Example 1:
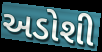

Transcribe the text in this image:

અડોશી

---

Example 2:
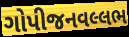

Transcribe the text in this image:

ગોપીજનવલ્લભ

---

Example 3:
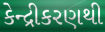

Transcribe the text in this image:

કેન્દ્રીકરણથી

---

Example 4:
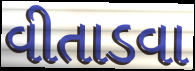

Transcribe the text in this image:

વીતાડવા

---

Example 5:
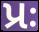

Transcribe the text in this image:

પ્રઃ